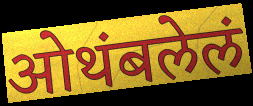
ओथंबलेलं